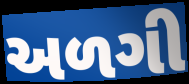
અળગી